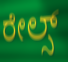
ರೇಲ್ಸ್